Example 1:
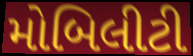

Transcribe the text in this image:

મોબિલીટી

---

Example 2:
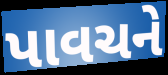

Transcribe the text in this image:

પાવચને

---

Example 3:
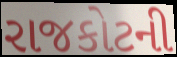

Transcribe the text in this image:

રાજકોટની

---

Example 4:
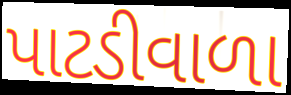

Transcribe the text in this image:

પાટડીવાળા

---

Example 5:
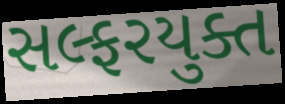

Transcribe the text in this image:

સલ્ફરયુક્ત